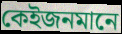
কেইজনমানে